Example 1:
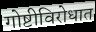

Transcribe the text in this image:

गोष्टीविरोधात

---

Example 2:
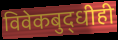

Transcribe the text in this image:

विवेकबुद्धीही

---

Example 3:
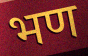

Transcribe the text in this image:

भण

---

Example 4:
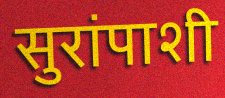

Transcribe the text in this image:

सुरांपाशी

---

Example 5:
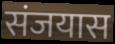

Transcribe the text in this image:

संजयास